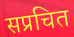
सप्रचित